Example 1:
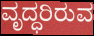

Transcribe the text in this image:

ವೃದ್ಧರಿರುವ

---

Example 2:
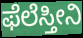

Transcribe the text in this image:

ಫೆಲೆಸ್ತೀನಿ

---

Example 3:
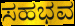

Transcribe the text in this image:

ಸಹಭವ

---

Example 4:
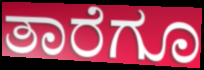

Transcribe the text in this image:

ತಾರೆಗೂ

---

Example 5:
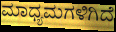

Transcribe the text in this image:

ಮಾಧ್ಯಮಗಳಿಗಿದೆ